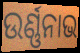
ଉର୍ଣ୍ଣନାଭ